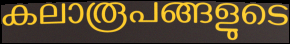
കലാരൂപങ്ങളുടെ